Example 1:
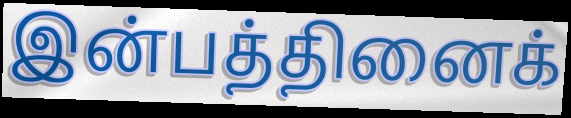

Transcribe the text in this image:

இன்பத்தினைக்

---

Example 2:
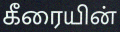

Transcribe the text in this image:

கீரையின்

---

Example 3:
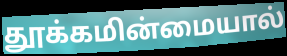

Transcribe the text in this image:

தூக்கமின்மையால்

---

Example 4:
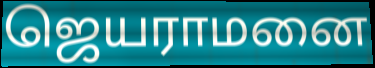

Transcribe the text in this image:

ஜெயராமனை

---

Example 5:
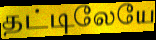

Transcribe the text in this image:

தட்டிலேயே